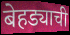
बेहड्याची